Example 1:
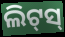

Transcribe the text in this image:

ଲିଟ୍‌ସ୍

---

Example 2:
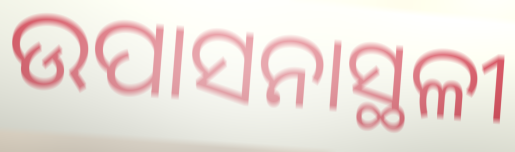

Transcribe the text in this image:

ଉପାସନାସ୍ଥଳୀ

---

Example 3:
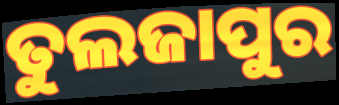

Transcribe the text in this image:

ତୁଲଜାପୁର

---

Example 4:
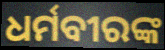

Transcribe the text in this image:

ଧର୍ମବୀରଙ୍କ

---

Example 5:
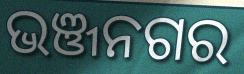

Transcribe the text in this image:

ଭଞ୍ଜନଗର